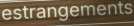
estrangements